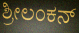
ಶ್ರೀಲಂಕನ್